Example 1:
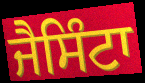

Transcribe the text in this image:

ਜੈਸਿੰਟਾ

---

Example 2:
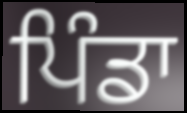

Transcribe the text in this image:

ਪਿੰਡਾ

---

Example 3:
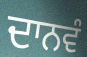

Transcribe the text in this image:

ਦਾਨਵੰ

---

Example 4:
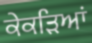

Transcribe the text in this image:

ਕੇਕੜਿਆਂ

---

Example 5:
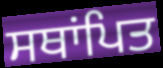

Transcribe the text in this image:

ਸਥਾਂਪਿਤ